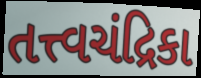
તત્ત્વચંદ્રિકા